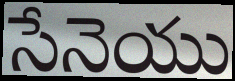
సేనెయు